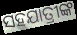
ସହଯାତ୍ରୀଙ୍କ